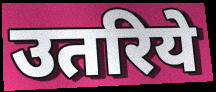
उतरिये